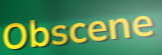
Obscene